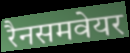
रैनसमवेयर